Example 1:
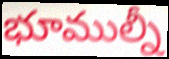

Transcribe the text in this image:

భూముల్నీ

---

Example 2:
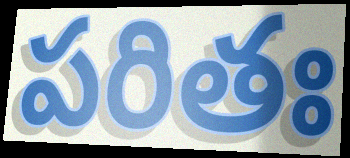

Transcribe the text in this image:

పరితః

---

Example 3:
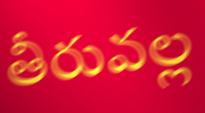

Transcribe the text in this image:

తీరువల్ల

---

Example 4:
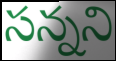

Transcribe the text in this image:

సన్నని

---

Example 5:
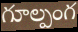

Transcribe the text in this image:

గూల్పంగ